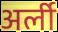
अर्ली